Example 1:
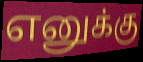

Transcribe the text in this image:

எனுக்கு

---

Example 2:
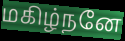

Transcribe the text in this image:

மகிழ்நனே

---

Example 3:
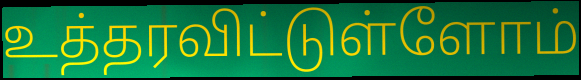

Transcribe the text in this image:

உத்தரவிட்டுள்ளோம்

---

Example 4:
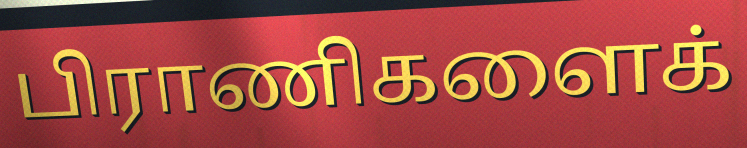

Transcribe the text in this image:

பிராணிகளைக்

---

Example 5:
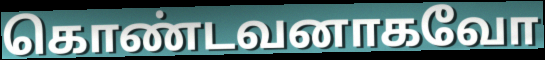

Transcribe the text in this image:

கொண்டவனாகவோ